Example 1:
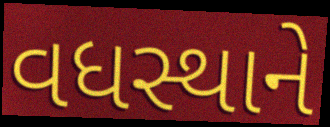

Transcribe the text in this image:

વધસ્થાને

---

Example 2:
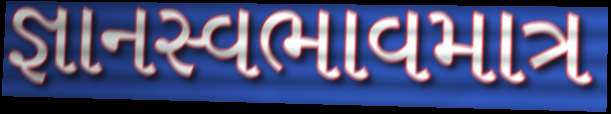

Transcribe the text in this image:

જ્ઞાનસ્વભાવમાત્ર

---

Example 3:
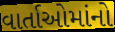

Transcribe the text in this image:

વાર્તાઓમાંનો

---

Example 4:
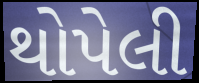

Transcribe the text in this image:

થોપેલી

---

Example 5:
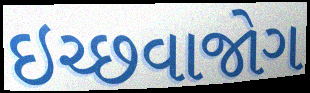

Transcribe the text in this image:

ઇચ્છવાજોગ